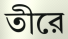
তীরে